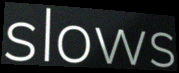
slows